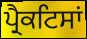
ਪ੍ਰੈਕਟਿਸਾਂ